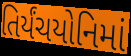
તિર્યંચયોનિમાં